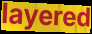
layered